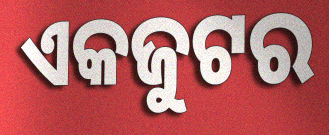
ଏକଜୁଟର